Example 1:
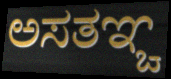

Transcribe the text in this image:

ಅಸತಞ್ಚ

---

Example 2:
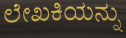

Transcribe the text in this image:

ಲೇಖಕಿಯನ್ನು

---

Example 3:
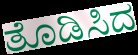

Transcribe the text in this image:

ತೊಡಿಸಿದ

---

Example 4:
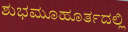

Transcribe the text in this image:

ಶುಭಮೂಹೂರ್ತದಲ್ಲಿ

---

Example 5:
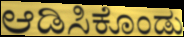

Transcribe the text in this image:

ಆಡಿಸಿಕೊಂಡು